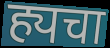
ह्यचा